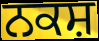
ਨਕਸ਼